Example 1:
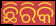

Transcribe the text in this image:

ଛିରିକି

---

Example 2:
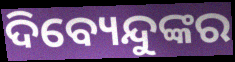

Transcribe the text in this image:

ଦିବ୍ୟେନ୍ଦୁଙ୍କର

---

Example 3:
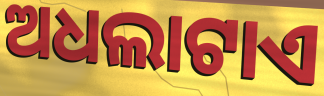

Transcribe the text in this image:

ଅଧଲାଟାଏ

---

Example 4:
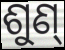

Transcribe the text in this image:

ଶୁଣ୍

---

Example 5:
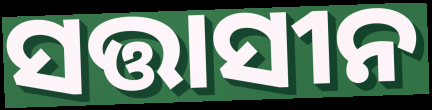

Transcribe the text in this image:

ସତ୍ତାସୀନ